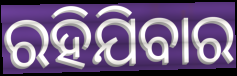
ରହିଯିବାର